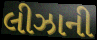
લીઝાની